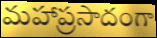
మహాప్రసాదంగా